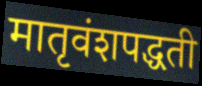
मातृवंशपद्धती